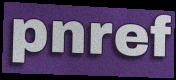
pnref